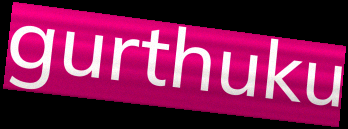
gurthuku